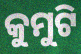
କୁମୁଟି